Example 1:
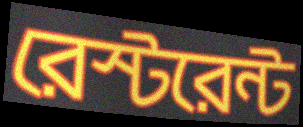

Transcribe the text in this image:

রেস্টরেন্ট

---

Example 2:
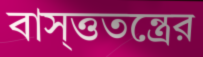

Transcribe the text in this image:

বাস্ত্ততন্ত্রের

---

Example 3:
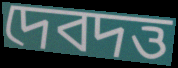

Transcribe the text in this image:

দেবদত্ত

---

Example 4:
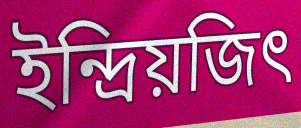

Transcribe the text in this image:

ইন্দ্রিয়জিৎ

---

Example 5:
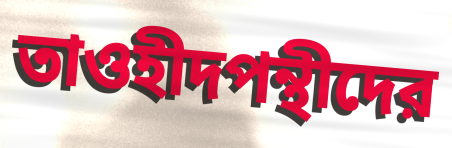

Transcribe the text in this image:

তাওহীদপন্থীদের